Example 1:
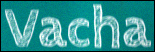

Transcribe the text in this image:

Vacha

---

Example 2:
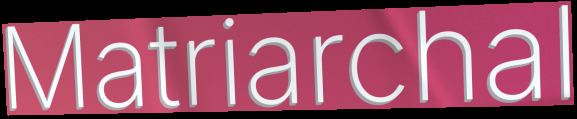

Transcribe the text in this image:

Matriarchal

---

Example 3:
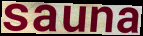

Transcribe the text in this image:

sauna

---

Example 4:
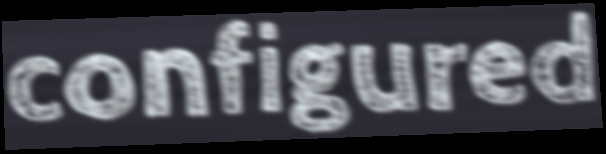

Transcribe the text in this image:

configured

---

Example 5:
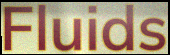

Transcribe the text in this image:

Fluids